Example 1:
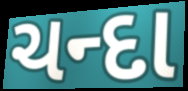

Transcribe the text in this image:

ચન્દા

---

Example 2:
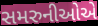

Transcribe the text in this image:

સમરુનીઓએ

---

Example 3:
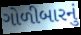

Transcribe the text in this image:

ગોળીબારનું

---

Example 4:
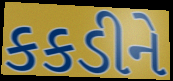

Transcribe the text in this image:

કકડીને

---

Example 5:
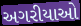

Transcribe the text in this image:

અગરીયાઓ